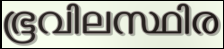
ഭൂവിലസ്ഥിര